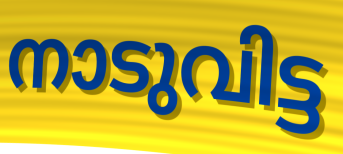
നാടുവിട്ട